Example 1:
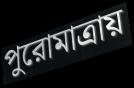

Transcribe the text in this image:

পুরোমাত্রায়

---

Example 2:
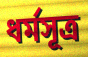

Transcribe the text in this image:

ধর্মসূত্র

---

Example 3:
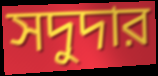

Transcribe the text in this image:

সদুদার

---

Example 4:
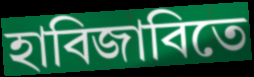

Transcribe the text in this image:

হাবিজাবিতে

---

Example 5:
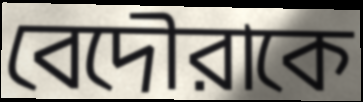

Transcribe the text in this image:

বেদৌরাকে